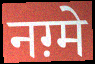
नग़्मे